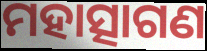
ମହାତ୍ସାଗଣ